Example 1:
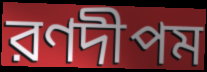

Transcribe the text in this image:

রণদীপম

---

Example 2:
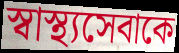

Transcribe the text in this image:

স্বাস্থ্যসেবাকে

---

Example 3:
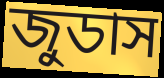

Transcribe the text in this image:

জুডাস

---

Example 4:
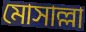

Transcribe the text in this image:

মোসাল্লা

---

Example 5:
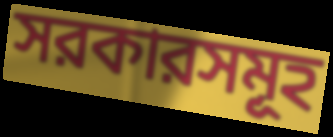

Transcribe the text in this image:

সরকারসমূহ